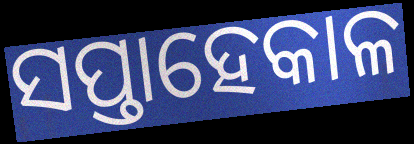
ସପ୍ତାହେକାଳ